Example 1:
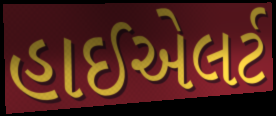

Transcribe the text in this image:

હાઈએલર્ટ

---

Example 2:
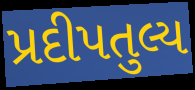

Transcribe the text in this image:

પ્રદીપતુલ્ય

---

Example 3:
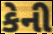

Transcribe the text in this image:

કેની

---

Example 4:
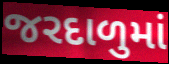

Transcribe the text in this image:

જરદાળુમાં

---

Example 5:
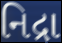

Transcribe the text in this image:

નિદ્રા